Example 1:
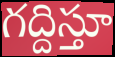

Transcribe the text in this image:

గద్దిస్తూ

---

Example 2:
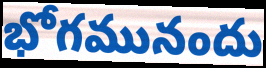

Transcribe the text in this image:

భోగమునందు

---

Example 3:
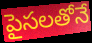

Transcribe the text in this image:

పైసలతోనే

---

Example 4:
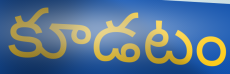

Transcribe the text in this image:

కూడటం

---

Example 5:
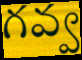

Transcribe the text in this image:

గవ్వ